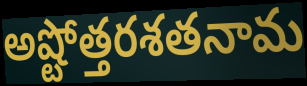
అష్టోత్తరశతనామ